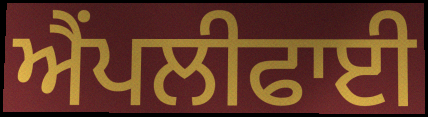
ਐਂਪਲੀਫਾਈ